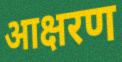
आक्षरण